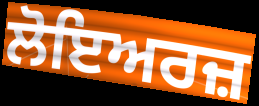
ਲੋਇਅਰਜ਼